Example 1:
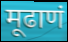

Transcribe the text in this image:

मूढाणं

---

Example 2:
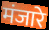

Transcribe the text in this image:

मंजारे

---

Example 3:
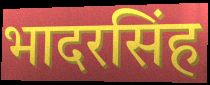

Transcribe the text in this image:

भादरसिंह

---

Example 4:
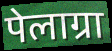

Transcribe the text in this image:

पेलाग्रा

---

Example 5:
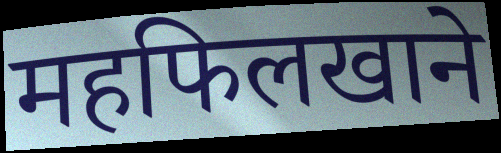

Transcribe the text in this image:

महफिलखाने